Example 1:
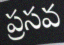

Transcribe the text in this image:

ప్రసవ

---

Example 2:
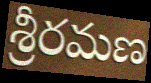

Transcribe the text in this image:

శ్రీరమణ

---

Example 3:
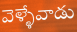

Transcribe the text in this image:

వెళ్ళేవాడు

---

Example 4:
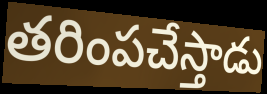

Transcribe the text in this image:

తరింపచేస్తాడు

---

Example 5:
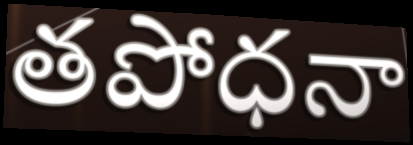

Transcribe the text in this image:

తపోధనా